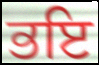
ਭਇ